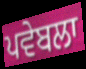
ਪਵੇਬਲਾ